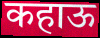
कहाऊ